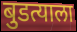
बुडत्याला